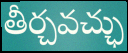
తీర్చవచ్ఛు